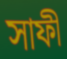
সাফী